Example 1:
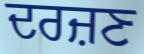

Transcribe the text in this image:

ਦਰਜ਼ਣ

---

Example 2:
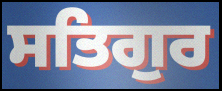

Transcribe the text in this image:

ਸਤਿਗੁਰ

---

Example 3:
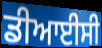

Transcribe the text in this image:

ਡੀਆਈਸੀ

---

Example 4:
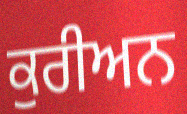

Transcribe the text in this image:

ਕੁਰੀਅਨ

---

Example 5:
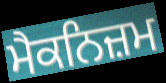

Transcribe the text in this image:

ਮੈਕਨਿਜ਼ਮ